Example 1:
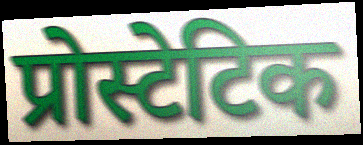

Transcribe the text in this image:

प्रोस्टेटिक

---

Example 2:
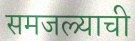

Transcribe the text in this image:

समजल्याची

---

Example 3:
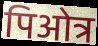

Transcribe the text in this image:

पिओत्र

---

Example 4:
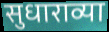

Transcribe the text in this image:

सुधाराव्या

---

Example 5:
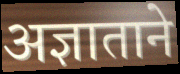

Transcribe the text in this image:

अज्ञाताने